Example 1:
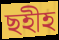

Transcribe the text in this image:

ছহীহ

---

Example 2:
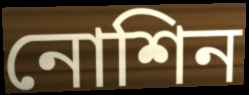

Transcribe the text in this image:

নোশিন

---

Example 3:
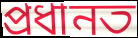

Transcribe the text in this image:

প্রধানত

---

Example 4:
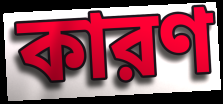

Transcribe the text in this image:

কারণ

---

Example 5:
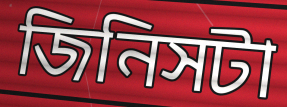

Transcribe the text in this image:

জিনিসটা